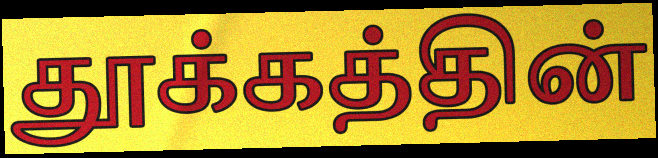
தூக்கத்தின்